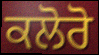
ਕਲੋਰੋ